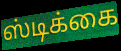
ஸ்டிக்கை